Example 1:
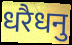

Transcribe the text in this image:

धरैधनु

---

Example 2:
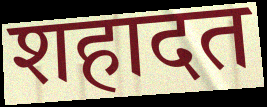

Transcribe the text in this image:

शहादत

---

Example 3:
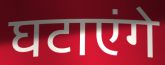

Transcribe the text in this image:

घटाएंगे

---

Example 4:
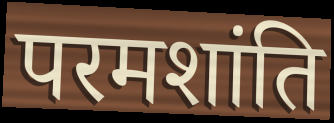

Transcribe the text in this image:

परमशांति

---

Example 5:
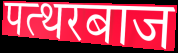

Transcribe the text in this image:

पत्थरबाज